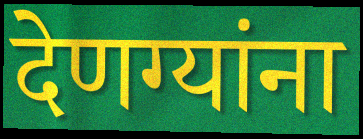
देणग्यांना